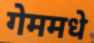
गेममधे